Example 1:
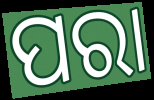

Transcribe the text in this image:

ପରା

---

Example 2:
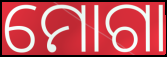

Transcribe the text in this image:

ମୋଗା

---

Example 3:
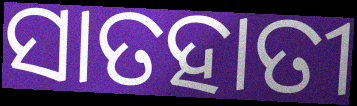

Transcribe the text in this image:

ସାତହାତୀ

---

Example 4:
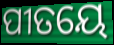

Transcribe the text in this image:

ପୀତୟେ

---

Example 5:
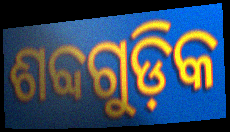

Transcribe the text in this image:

ଶବ୍ଦଗୁଡ଼ିକ